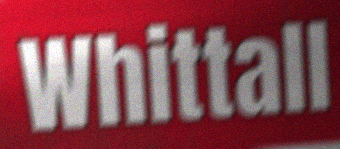
Whittall